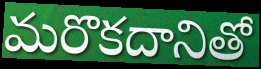
మరొకదానితో